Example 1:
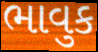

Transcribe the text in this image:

ભાવુક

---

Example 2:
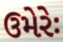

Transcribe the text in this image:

ઉમેરેઃ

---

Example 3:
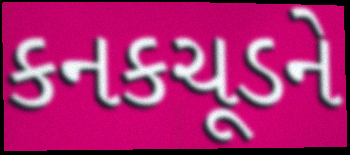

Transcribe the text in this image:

કનકચૂડને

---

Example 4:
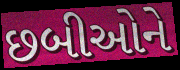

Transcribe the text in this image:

છબીઓને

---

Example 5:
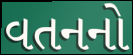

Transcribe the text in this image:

વતનનો